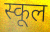
स्कूल